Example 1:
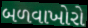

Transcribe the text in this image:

બળવાખોરો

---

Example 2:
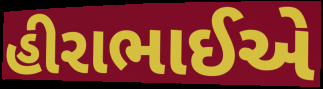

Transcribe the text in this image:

હીરાભાઈએ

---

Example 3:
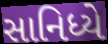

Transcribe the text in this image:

સાનિધ્યે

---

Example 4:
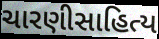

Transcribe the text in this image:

ચારણીસાહિત્ય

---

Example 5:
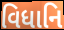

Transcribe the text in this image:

વિધાનિ